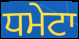
ਧਮੇਟਾ